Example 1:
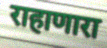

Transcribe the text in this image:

राहाणारा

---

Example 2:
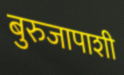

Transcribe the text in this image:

बुरुजापाशी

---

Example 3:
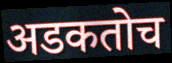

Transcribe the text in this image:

अडकतोच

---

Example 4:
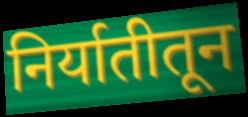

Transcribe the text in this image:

निर्यातीतून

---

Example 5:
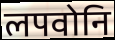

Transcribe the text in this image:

लपवोनि